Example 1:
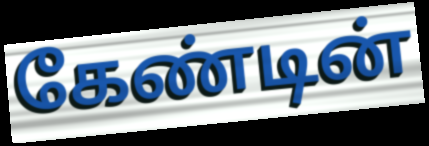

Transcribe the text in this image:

கேண்டின்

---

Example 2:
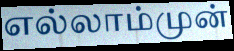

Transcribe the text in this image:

எல்லாம்முன்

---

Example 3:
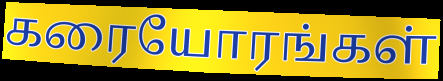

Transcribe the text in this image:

கரையோரங்கள்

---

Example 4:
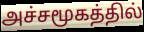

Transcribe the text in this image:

அச்சமூகத்தில்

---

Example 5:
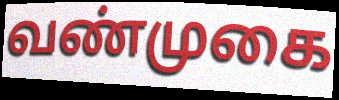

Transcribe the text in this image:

வண்முகை